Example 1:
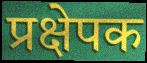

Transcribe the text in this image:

प्रक्षेपक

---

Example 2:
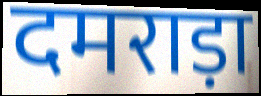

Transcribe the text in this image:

दमराड़ा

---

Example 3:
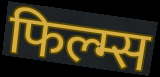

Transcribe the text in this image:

फिल्म्स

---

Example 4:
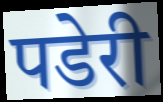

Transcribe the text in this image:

पडेरी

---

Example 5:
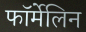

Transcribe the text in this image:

फॉर्मेलिन